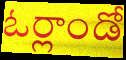
ఓర్లాండో